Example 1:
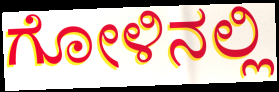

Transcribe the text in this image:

ಗೋಳಿನಲ್ಲಿ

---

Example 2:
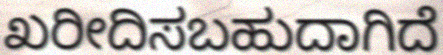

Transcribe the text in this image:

ಖರೀದಿಸಬಹುದಾಗಿದೆ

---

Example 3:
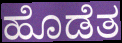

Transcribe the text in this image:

ಹೊಡೆತ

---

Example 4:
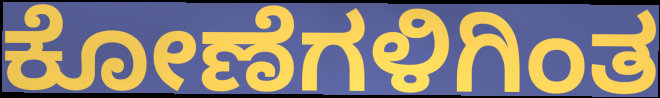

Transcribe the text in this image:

ಕೋಣೆಗಳಿಗಿಂತ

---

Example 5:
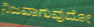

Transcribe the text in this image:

ನಿಜವಾಗುವುದೋ